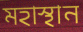
মহাস্থান